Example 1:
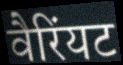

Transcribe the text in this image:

वैरिंयट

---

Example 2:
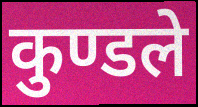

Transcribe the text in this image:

कुण्डले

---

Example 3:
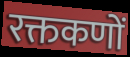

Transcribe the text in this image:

रक्तकणों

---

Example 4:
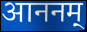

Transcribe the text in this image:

आननम्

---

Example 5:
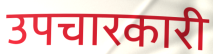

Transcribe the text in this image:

उपचारकारी